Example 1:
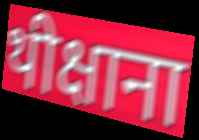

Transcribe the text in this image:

थीक्षाना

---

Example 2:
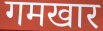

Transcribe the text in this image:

गमखार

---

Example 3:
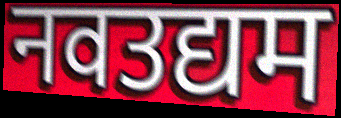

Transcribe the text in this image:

नवउद्यम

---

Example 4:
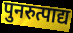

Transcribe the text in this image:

पुनरुत्पाद्य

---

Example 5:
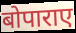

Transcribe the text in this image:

बोपाराए